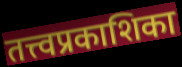
तत्त्वप्रकाशिका